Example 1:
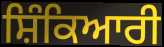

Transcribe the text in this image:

ਸ਼ਿੰਕਿਆਰੀ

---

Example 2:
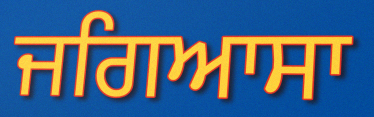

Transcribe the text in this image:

ਜਗਿਆਸਾ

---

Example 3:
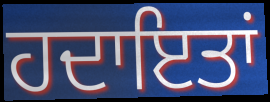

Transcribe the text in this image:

ਹਦਾਇਤਾਂ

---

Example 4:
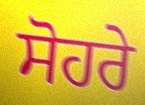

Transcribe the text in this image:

ਸੋਹਰੇ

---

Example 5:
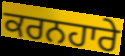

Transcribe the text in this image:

ਕਰਨਹਾਰੇ